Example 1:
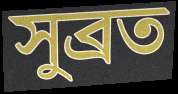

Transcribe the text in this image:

সুব্ৰত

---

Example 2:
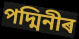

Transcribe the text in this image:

পদ্মিনীৰ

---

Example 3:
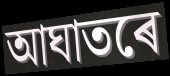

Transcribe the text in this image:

আঘাতৰে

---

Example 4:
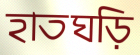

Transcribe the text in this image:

হাতঘড়ি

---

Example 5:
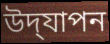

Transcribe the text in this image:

উদ্‌যাপন